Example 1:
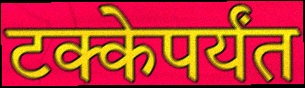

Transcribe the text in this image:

टक्केपर्यंत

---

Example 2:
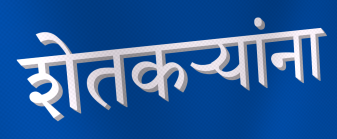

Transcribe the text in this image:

शेतकऱ्यांना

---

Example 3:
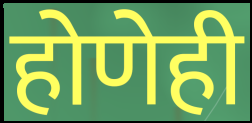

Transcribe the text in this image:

होणेही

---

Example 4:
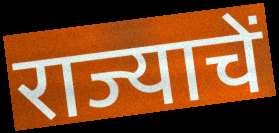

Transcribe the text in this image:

राज्याचें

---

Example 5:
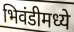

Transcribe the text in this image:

भिवंडीमध्ये